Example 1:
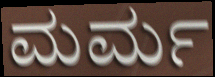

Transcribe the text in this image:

ಮರ್ಮ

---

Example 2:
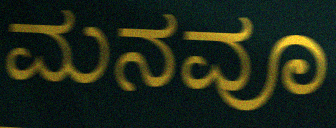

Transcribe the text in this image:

ಮನವೂ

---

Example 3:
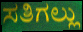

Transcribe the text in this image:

ಸತಿಗಲ್ಲು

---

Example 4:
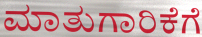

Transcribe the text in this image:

ಮಾತುಗಾರಿಕೆಗೆ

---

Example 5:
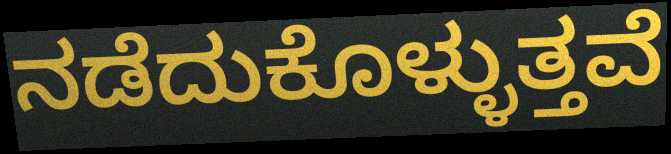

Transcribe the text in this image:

ನಡೆದುಕೊಳ್ಳುತ್ತವೆ